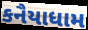
કનૈયાધામ